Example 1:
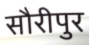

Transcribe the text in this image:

सौरीपुर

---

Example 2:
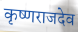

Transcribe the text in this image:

कृष्णराजदेव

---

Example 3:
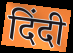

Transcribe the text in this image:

दिंदी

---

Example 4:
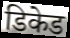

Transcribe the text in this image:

डिकेड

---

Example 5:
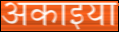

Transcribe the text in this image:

अकाइया